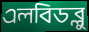
এলবিডব্লু